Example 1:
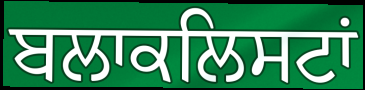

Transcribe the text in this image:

ਬਲਾਕਲਿਸਟਾਂ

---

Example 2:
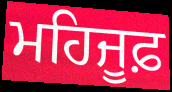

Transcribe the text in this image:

ਮਹਿਜੂਫ਼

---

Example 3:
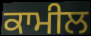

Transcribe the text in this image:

ਕਾਮੀਲ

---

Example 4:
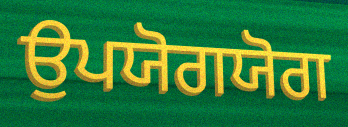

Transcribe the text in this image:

ਉਪਯੋਗਯੋਗ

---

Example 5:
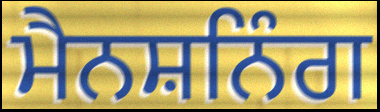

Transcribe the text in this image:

ਮੈਨਸ਼ਨਿੰਗ